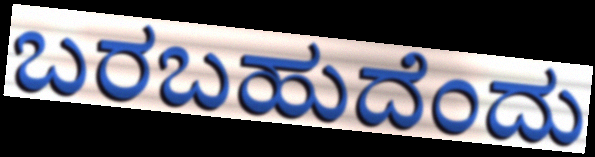
ಬರಬಹುದೆಂದು